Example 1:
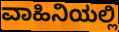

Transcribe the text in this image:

ವಾಹಿನಿಯಲ್ಲಿ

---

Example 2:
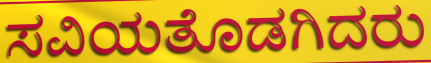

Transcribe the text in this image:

ಸವಿಯತೊಡಗಿದರು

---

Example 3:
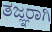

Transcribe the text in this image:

ತಜ್ಞರಾಗಿ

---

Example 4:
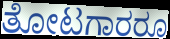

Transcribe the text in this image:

ತೋಟಗಾರರೂ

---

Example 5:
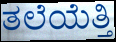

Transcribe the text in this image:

ತಲೆಯೆತ್ತಿ